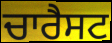
ਚਾਰੈਸਟ